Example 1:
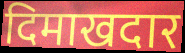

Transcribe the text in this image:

दिमाखदार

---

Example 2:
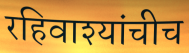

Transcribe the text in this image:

रहिवाश्यांचीच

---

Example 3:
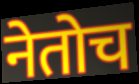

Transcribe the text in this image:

नेतोच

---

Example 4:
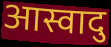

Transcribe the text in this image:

आस्वादु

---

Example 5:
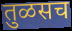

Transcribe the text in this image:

तुळसच